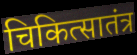
चिकित्सातंत्र